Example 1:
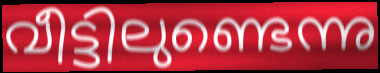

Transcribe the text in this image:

വീട്ടിലുണ്ടെന്നു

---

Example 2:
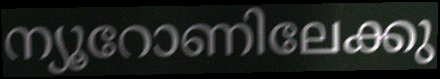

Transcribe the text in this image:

ന്യൂറോണിലേക്കു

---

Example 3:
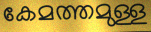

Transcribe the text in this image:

കേമത്തമുള്ള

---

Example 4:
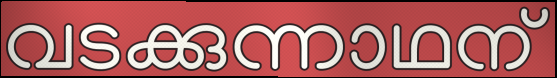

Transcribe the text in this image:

വടക്കുന്നാഥന്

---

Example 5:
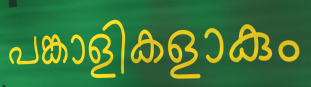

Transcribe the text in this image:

പങ്കാളികളാകും